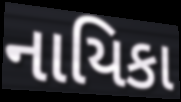
નાયિકા